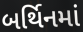
બર્થિનમાં